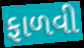
ફાળવી